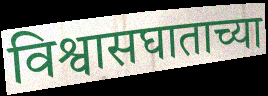
विश्वासघाताच्या